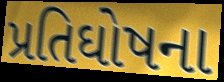
પ્રતિઘોષના